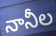
నానీల